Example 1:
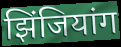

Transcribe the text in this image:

झिंजियांग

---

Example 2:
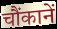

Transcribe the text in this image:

चौंकानें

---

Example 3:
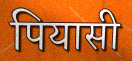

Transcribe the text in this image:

पियासी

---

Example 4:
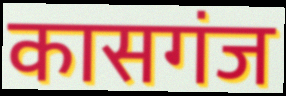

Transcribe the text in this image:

कासगंज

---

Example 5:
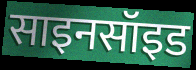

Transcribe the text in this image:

साइनसॉइड